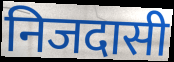
निजदासी